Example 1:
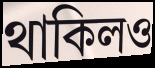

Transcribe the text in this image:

থাকিলও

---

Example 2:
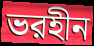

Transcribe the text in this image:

ভরহীন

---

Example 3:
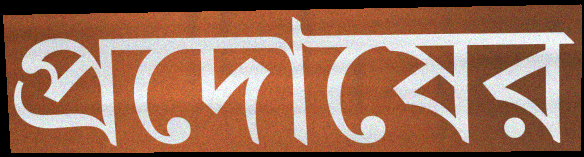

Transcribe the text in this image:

প্রদোষের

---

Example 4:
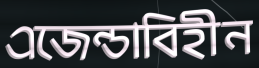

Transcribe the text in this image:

এজেন্ডাবিহীন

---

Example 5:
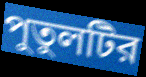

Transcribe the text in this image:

পুতুলটির